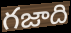
గజాది